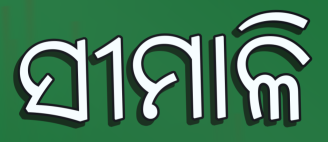
ସୀମାଳି